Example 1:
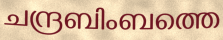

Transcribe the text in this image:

ചന്ദ്രബിംബത്തെ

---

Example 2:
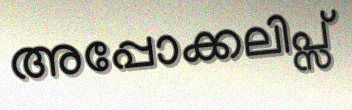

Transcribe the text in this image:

അപ്പോക്കലിപ്സ്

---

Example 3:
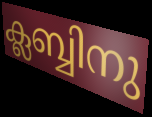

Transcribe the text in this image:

ക്ലബ്ബിനു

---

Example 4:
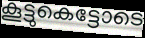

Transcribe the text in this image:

കൂട്ടുകെട്ടോടെ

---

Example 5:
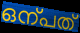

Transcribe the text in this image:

ഒന്പത്